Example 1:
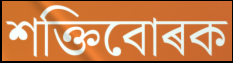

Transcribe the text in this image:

শক্তিবোৰক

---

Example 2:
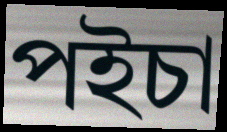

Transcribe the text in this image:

পইচা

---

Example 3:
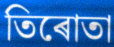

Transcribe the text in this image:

তিৰোতা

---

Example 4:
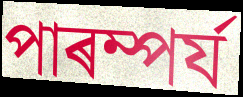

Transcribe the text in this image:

পাৰম্পৰ্য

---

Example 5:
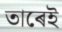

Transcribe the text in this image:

তাৰেই